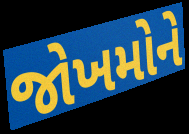
જોખમોને